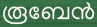
രൂബേൻ